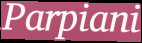
Parpiani